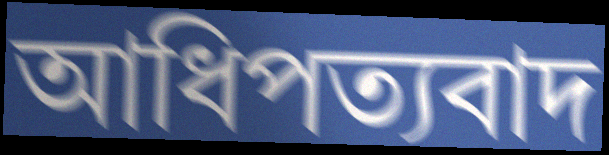
আধিপত্যবাদ